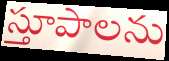
స్తూపాలను